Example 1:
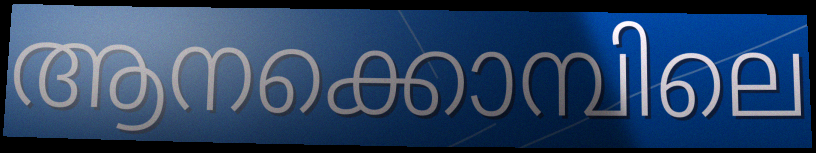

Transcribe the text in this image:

ആനക്കൊമ്പിലെ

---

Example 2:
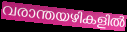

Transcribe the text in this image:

വരാന്തയഴികളിൽ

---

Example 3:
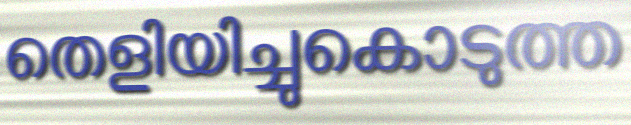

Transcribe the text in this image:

തെളിയിച്ചുകൊടുത്ത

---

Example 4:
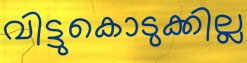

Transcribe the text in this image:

വിട്ടുകൊടുക്കില്ല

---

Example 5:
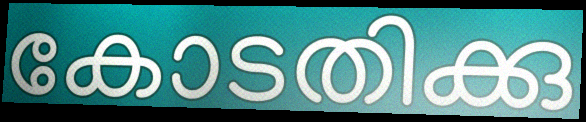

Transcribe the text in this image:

കോടതിക്കു